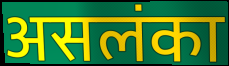
असलंका